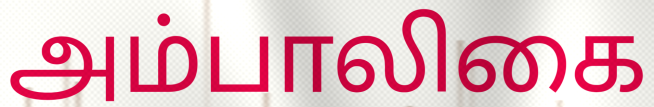
அம்பாலிகை